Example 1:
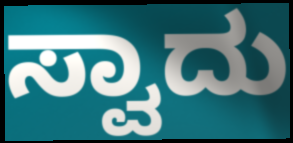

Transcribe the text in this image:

ಸ್ವಾದು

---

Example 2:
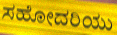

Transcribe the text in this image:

ಸಹೋದರಿಯು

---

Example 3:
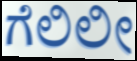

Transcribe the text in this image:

ಗೆಲಿಲೀ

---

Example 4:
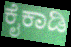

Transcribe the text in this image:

ಕೈಕಾಡಿ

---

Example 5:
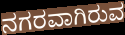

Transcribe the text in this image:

ನಗರವಾಗಿರುವ